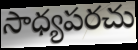
సాధ్యపరచు